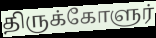
திருக்கோளுர்